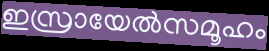
ഇസ്രായേൽസമൂഹം